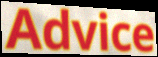
Advice